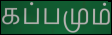
கப்பமும்